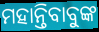
ମହାନ୍ତିବାବୁଙ୍କ